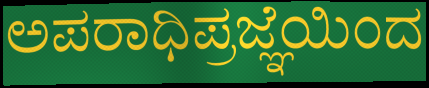
ಅಪರಾಧಿಪ್ರಜ್ಞೆಯಿಂದ